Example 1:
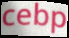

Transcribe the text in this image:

cebp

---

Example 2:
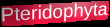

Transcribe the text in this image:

Pteridophyta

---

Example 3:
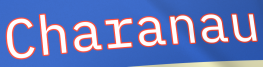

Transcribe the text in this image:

Charanau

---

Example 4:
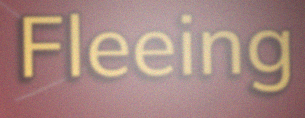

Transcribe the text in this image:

Fleeing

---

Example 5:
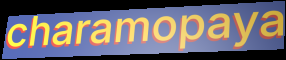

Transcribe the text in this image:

charamopaya